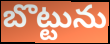
బొట్టును